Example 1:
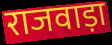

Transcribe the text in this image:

राजवाड़ा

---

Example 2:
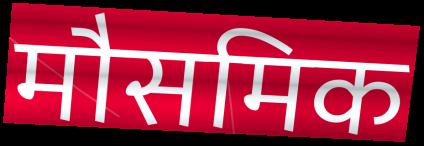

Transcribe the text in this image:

मौसमिक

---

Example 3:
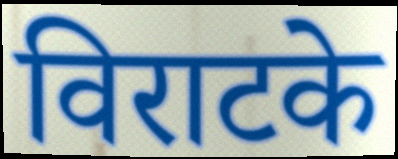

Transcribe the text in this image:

विराटके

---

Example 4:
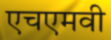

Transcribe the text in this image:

एचएमवी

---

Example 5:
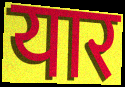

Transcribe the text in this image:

यार